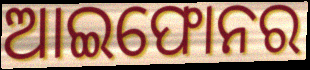
ଆଇଫୋନର